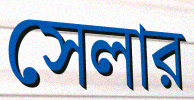
সেলার